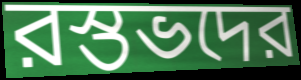
রস্তভদের